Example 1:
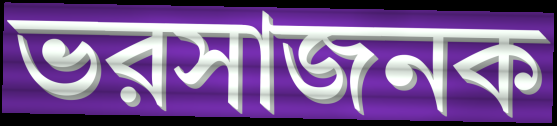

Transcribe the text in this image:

ভরসাজনক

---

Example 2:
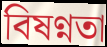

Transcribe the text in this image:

বিষণ্নতা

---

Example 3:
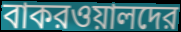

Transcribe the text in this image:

বাকরওয়ালদের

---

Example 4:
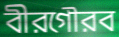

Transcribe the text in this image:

বীরগৌরব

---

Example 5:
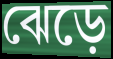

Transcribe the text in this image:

ঝেড়ে